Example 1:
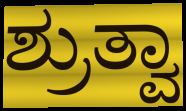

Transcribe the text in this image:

ಶ್ರುತ್ವಾ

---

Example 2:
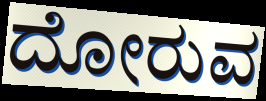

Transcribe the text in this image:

ದೋರುವ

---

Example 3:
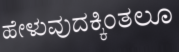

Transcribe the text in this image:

ಹೇಳುವುದಕ್ಕಿಂತಲೂ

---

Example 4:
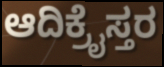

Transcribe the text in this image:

ಆದಿಕ್ರೈಸ್ತರ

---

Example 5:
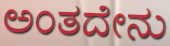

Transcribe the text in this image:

ಅಂತದೇನು